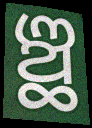
ଞ୍ଛ